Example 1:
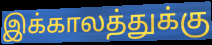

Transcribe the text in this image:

இக்காலத்துக்கு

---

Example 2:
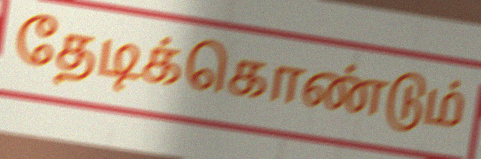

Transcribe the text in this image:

தேடிக்கொண்டும்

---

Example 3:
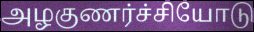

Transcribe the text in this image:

அழகுணர்ச்சியோடு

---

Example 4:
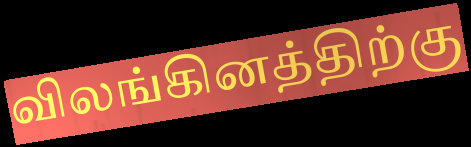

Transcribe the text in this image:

விலங்கினத்திற்கு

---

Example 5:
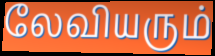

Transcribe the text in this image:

லேவியரும்